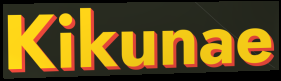
Kikunae